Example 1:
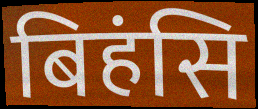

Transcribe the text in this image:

बिहंसि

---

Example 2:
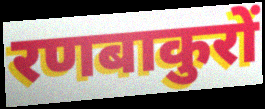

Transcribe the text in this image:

रणबाकुरों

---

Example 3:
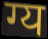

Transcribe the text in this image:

ग्य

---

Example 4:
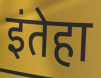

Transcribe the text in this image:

इंतेहा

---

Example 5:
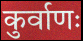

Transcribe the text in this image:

कुर्वाणः